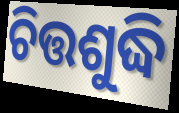
ଚିତ୍ତଶୁଦ୍ଧି